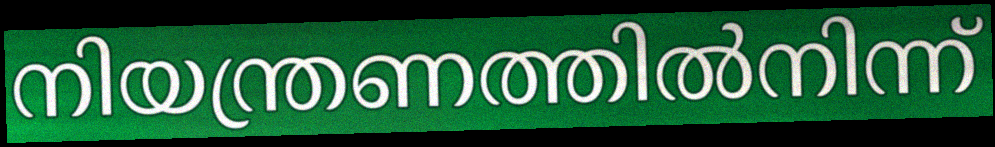
നിയന്ത്രണത്തിൽനിന്ന്